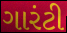
ગારંટી